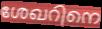
ശേഖറിനെ